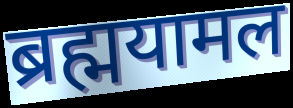
ब्रह्मयामल